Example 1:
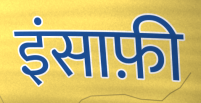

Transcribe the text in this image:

इंसाफ़ी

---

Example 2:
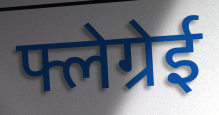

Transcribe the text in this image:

फ्लेग्रेई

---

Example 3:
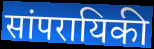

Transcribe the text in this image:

सांपरायिकी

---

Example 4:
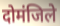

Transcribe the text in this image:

दोमंजिले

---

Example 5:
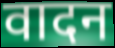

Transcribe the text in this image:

वादन